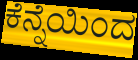
ಕೆನ್ನೆಯಿಂದ